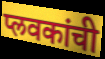
प्लवकांची